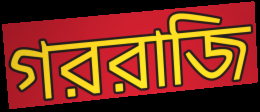
গররাজি